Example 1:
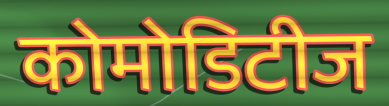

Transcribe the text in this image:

कोमोडिटीज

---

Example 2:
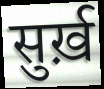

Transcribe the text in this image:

सुर्ख़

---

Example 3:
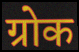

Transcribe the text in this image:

ग्रोक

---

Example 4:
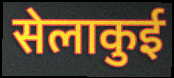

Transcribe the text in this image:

सेलाकुई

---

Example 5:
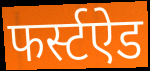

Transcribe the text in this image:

फर्स्टऐड